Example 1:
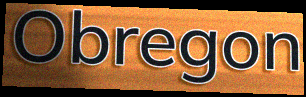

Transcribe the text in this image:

Obregon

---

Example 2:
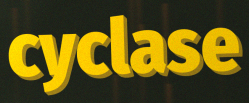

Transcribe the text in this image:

cyclase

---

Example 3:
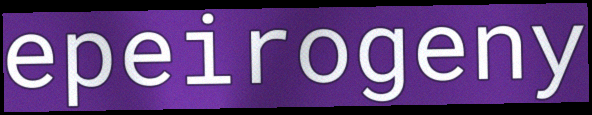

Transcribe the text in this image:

epeirogeny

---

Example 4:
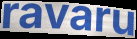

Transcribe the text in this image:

ravaru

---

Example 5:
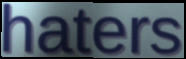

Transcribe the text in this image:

haters